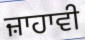
ਜ਼ਾਹਾਵੀ